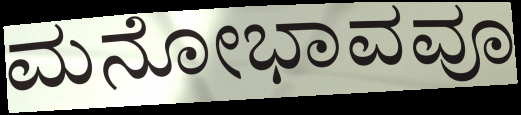
ಮನೋಭಾವವೂ